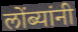
लोंब्यांनी